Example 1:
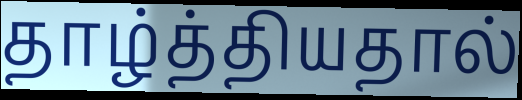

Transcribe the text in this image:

தாழ்த்தியதால்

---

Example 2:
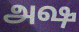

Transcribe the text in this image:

அஷ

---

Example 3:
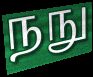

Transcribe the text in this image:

நநு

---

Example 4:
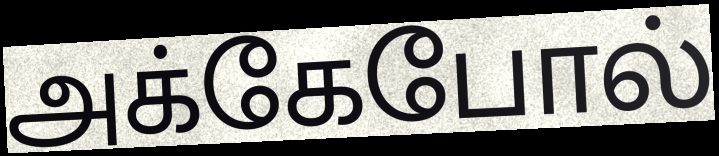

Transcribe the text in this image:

அக்கேபோல்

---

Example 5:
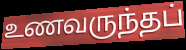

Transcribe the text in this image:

உணவருந்தப்